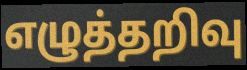
எழுத்தறிவு